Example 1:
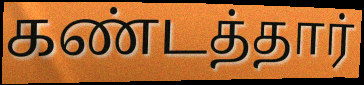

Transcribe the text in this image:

கண்டத்தார்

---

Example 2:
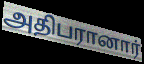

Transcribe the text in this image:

அதிபரானார்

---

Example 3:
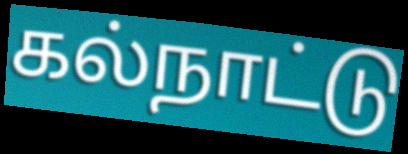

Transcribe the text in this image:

கல்நாட்டு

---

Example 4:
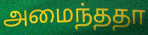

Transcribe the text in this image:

அமைந்ததா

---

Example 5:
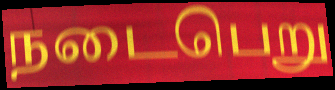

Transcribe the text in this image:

நடைபெறு